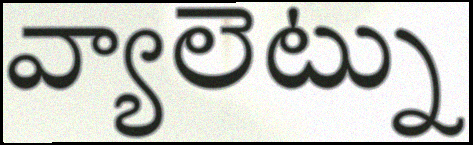
వ్యాలెట్ను